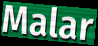
Malar